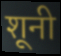
शूनी